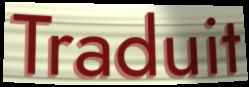
Traduit